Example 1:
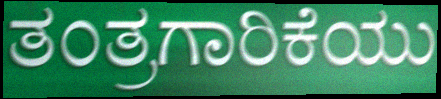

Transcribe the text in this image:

ತಂತ್ರಗಾರಿಕೆಯು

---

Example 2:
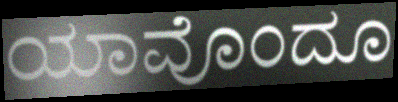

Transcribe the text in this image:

ಯಾವೊಂದೂ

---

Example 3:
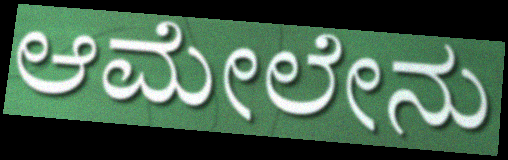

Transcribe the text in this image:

ಆಮೇಲೇನು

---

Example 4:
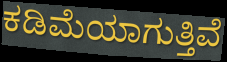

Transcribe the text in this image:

ಕಡಿಮೆಯಾಗುತ್ತಿವೆ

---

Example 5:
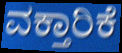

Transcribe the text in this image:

ವಕ್ತಾರಿಕೆ